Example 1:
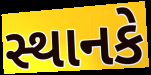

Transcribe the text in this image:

સ્થાનકે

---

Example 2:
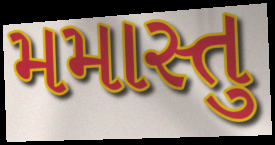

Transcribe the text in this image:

મમાસ્તુ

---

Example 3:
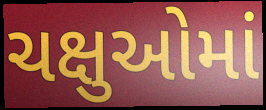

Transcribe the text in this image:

ચક્ષુઓમાં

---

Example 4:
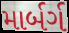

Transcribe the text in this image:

માર્બર્ગ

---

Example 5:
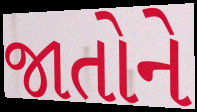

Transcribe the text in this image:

જાતોને